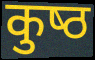
कुष्‍ठ